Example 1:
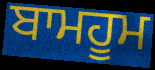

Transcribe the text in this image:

ਬਾਮਹੂਮ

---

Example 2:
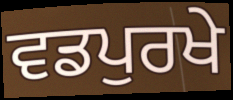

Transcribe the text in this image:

ਵਡਪੁਰਖੇ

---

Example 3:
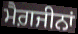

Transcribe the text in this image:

ਮੈਗ਼ਜੀਨਾਂ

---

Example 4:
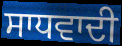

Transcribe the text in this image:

ਸਾਧਵਾਦੀ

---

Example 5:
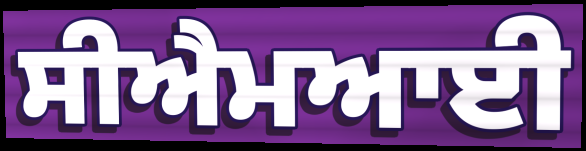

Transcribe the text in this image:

ਸੀਐਮਆਈ